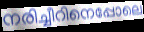
നരിച്ചീറിനെപ്പോലെ